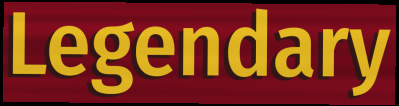
Legendary